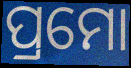
ପ୍ରମୋ